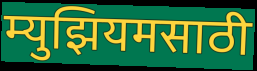
म्युझियमसाठी